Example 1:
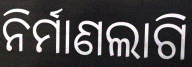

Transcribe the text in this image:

ନିର୍ମାଣଲାଗି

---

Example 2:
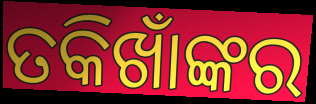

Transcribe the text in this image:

ତକିଖାଁଙ୍କର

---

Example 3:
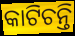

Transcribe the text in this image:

କାଟିଚନ୍ତି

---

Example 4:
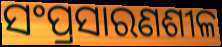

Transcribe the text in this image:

ସଂପ୍ରସାରଣଶୀଳ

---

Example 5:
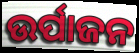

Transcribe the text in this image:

ଉର୍ପାଜନ